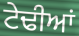
ਟੇਢੀਆਂ